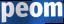
peom